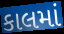
કાલમાં